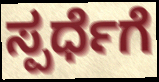
ಸ್ಪರ್ಧೆಗೆ